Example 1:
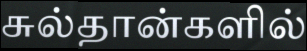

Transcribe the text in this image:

சுல்தான்களில்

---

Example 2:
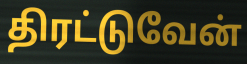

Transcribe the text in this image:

திரட்டுவேன்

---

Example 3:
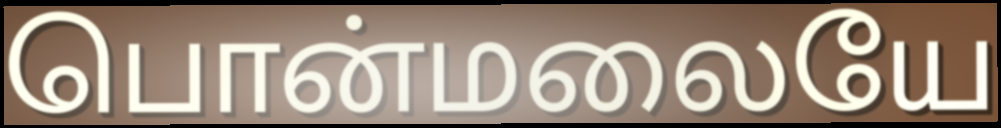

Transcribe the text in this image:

பொன்மலையே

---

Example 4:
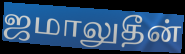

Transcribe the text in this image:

ஜமாலுதீன்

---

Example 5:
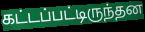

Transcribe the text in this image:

கட்டப்பட்டிருந்தன